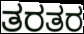
ತರತರ